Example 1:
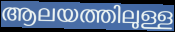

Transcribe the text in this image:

ആലയത്തിലുള്ള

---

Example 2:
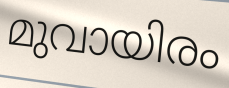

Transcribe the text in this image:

മുവായിരം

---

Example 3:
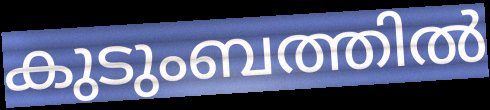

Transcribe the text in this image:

കുടുംബത്തിൽ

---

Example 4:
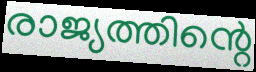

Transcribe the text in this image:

രാജ്യത്തിന്റെ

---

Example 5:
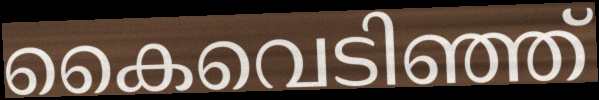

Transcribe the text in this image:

കൈവെടിഞ്ഞ്